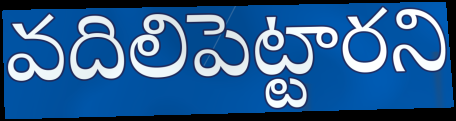
వదిలిపెట్టారని